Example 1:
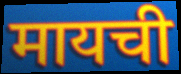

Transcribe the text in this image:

मायची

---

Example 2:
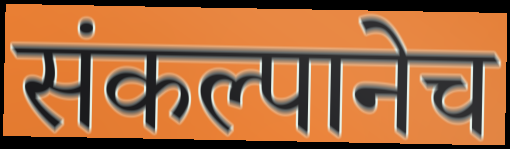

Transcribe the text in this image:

संकल्पानेच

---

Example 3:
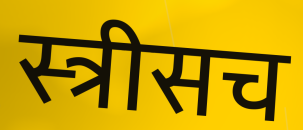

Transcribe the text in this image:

स्त्रीसच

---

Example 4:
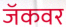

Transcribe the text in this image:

जॅकवर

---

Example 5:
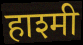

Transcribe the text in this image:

हाश्मी